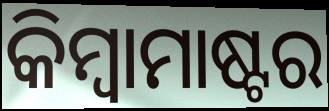
କିମ୍ୱାମାଷ୍ଟର